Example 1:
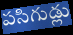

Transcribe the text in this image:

పసిగుడ్లు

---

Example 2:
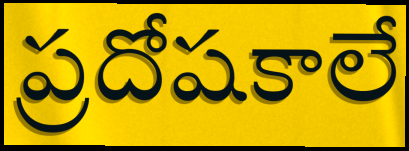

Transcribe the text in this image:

ప్రదోషకాలే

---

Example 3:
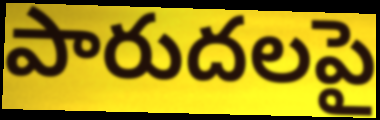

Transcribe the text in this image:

పారుదలపై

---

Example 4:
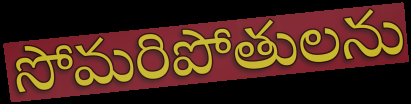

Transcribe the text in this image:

సోమరిపోతులను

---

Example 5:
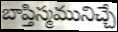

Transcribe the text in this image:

బాప్తిస్మమునిచ్చే